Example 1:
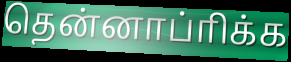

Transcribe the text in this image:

தென்னாப்ரிக்க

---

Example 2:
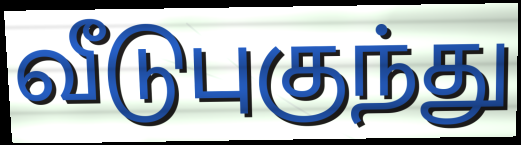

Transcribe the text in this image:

வீடுபுகுந்து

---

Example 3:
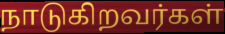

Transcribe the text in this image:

நாடுகிறவர்கள்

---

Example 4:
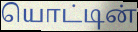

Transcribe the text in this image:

யொட்டின்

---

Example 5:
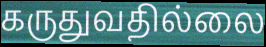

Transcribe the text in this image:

கருதுவதில்லை